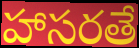
హాసరతే